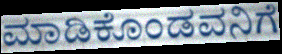
ಮಾಡಿಕೊಂಡವನಿಗೆ